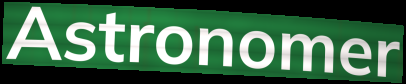
Astronomer